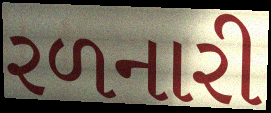
રળનારી